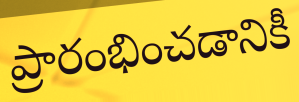
ప్రారంభించడానికీ